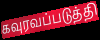
கவுரவப்படுத்தி